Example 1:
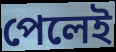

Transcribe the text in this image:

পেলেই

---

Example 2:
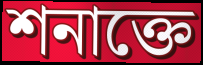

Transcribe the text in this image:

শনাক্তে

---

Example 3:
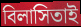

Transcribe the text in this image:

বিলাসিতাই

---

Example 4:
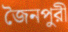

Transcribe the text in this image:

জৈনপুরী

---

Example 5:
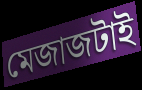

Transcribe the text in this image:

মেজাজটাই